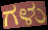
ಗಳು